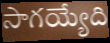
సాగయ్యేది